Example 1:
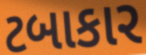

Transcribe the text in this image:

ટબાકાર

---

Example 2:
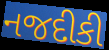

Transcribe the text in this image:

નજદીકી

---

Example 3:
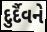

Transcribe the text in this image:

દુર્દૈવને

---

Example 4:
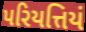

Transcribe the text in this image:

પરિયત્તિયં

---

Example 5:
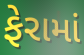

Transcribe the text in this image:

ફેરામાં